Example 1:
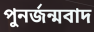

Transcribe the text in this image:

পুনর্জন্মবাদ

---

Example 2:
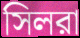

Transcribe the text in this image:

সিলরা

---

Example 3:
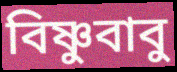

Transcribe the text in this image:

বিষ্ণুবাবু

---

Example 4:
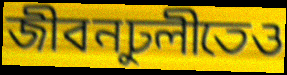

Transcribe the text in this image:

জীবনঢুলীতেও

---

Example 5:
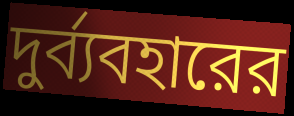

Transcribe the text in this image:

দুর্ব্যবহারের